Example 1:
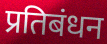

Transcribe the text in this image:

प्रतिबंधन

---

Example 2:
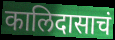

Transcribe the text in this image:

कालिदासाचं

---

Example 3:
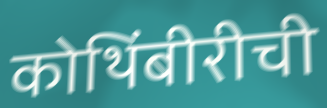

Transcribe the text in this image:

कोथिंबीरीची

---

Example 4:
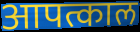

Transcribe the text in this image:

आपत्काल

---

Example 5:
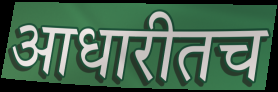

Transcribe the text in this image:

आधारीतच